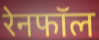
रेनफॉल